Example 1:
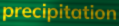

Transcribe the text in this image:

precipitation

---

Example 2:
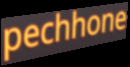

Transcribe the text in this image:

pechhone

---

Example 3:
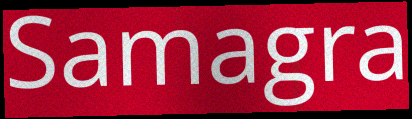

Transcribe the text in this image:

Samagra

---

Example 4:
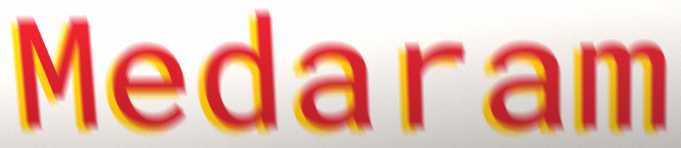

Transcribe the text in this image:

Medaram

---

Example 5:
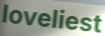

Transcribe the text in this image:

loveliest